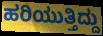
ಹರಿಯುತ್ತಿದ್ದು